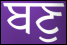
ਬਣੁ